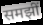
समझीं